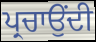
ਪ੍ਰਚਾਉਂਦੀ